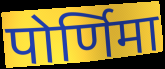
पोर्णिमा